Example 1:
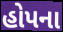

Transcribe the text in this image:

હોપના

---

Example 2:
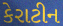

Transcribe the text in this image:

કેરાટીન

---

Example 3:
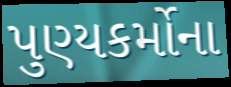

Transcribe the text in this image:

પુણ્યકર્મોના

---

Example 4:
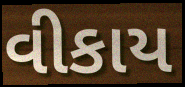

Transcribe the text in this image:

વીકાય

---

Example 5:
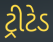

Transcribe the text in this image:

ટ્રીટેડ